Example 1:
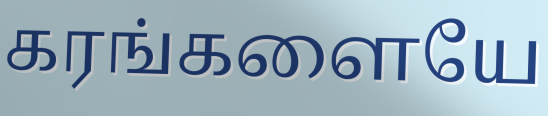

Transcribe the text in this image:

கரங்களையே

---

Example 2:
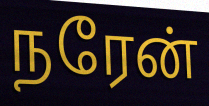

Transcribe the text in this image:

நரேன்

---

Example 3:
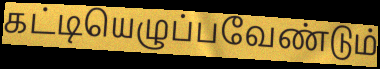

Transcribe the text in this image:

கட்டியெழுப்பவேண்டும்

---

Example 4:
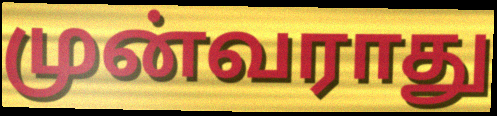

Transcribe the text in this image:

முன்வராது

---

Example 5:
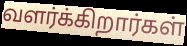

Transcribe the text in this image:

வளர்க்கிறார்கள்